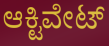
ಆಕ್ಟಿವೇಟ್